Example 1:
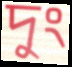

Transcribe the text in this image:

দুং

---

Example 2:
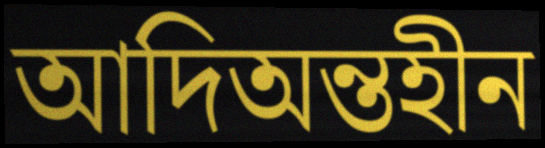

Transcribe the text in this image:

আদিঅন্তহীন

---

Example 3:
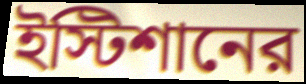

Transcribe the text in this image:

ইস্টিশানের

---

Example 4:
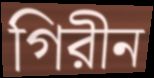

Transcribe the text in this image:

গিরীন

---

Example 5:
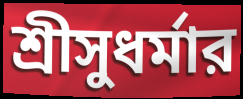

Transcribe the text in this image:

শ্রীসুধর্মার